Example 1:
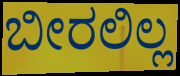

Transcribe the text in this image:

ಬೀರಲಿಲ್ಲ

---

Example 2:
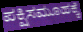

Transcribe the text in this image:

ಪಕ್ಷಿಸಮೂಹಕ್ಕೆ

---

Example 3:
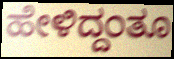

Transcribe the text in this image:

ಹೇಳಿದ್ದಂತೂ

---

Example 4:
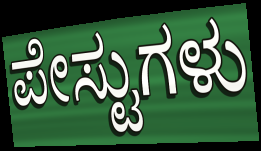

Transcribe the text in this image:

ಪೇಸ್ಟುಗಳು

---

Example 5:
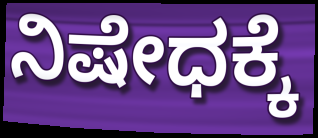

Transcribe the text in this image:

ನಿಷೇಧಕ್ಕೆ